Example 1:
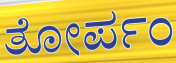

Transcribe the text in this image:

ತೋರ್ಪಂ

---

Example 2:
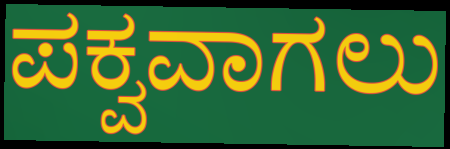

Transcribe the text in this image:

ಪಕ್ವವಾಗಲು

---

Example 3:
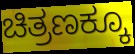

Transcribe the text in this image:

ಚಿತ್ರಣಕ್ಕೂ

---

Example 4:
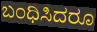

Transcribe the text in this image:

ಬಂಧಿಸಿದರೂ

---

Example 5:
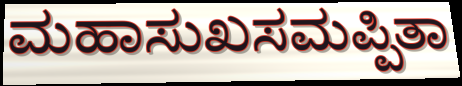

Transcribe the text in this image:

ಮಹಾಸುಖಸಮಪ್ಪಿತಾ